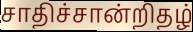
சாதிச்சான்றிதழ்